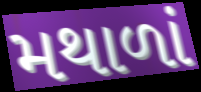
મથાળાં